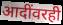
आदींवरही